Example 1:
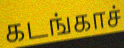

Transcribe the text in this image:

கடங்காச்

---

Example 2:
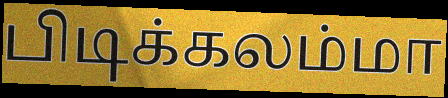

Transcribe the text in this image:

பிடிக்கலம்மா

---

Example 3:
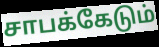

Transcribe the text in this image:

சாபக்கேடும்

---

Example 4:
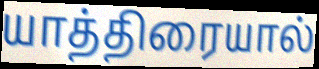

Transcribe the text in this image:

யாத்திரையால்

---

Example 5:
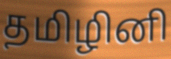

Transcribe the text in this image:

தமிழினி